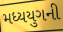
મધ્યયુગની